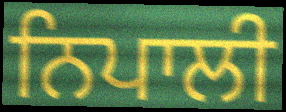
ਨਿਪਾਲੀ